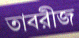
তাবরীজ